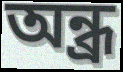
অন্ধ্র